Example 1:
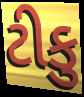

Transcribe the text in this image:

ટીકુ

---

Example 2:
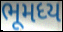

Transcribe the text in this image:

ભૂમધ્ય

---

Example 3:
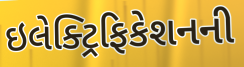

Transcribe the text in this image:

ઇલેક્ટ્રિફિકેશનની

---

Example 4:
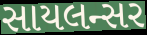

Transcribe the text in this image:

સાયલન્સર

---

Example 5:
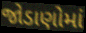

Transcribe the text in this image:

જોડાણોમાં